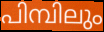
പിമ്പിലും